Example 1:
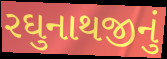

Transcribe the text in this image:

રઘુનાથજીનું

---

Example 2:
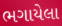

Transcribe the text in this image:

ભગાયેલા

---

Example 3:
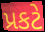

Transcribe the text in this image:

પ્રકટે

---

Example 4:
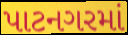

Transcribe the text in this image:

પાટનગરમાં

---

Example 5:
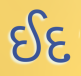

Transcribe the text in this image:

ઈદ